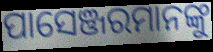
ପାସେଞ୍ଜରମାନଙ୍କୁ